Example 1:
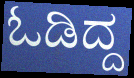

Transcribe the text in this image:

ಓಡಿದ್ದ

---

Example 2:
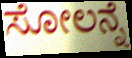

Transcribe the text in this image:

ಸೋಲನ್ನೆ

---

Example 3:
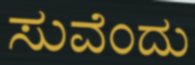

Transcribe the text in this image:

ಸುವೆಂದು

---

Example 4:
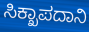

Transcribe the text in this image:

ಸಿಕ್ಖಾಪದಾನಿ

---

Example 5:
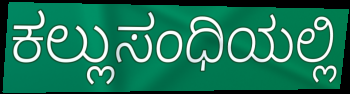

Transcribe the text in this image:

ಕಲ್ಲುಸಂಧಿಯಲ್ಲಿ